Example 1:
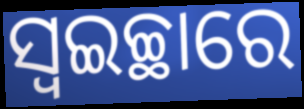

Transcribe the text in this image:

ସ୍ୱଇଚ୍ଛାରେ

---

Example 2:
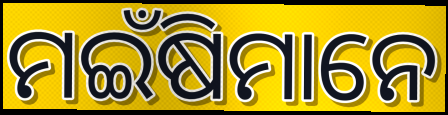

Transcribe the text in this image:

ମଇଁଷିମାନେ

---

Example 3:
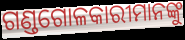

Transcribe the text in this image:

ଗଣ୍ଡଗୋଳକାରୀମାନଙ୍କୁ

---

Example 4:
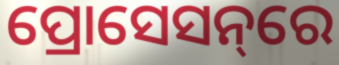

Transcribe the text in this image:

ପ୍ରୋସେସନ୍‌ରେ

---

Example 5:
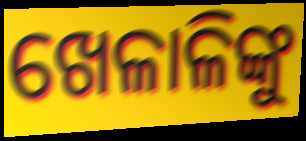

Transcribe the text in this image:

ଖେଳାଳିଙ୍କୁ